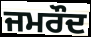
ਜਮਰੌਦ